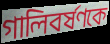
গালিবর্ষণকে